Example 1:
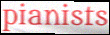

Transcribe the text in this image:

pianists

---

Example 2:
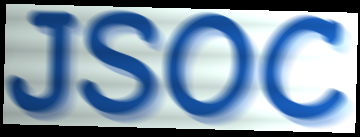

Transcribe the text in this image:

JSOC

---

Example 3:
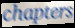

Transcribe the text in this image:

chapters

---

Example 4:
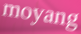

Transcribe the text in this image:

moyang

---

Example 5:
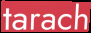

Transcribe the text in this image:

tarach